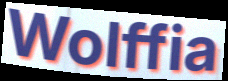
Wolffia